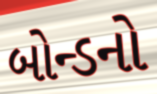
બોન્ડનો